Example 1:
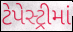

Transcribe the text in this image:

ટેપેસ્ટ્રીમાં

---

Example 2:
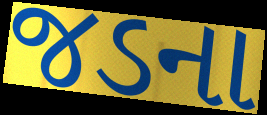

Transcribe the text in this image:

જડના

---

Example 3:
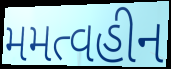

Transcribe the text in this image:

મમત્વહીન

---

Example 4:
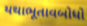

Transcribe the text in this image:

યથાભૂતાવબોધો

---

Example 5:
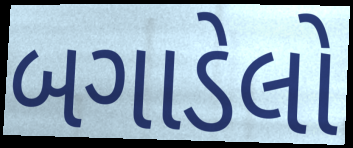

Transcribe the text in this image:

બગાડેલો